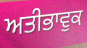
ਅਤੀਭਾਵੁਕ